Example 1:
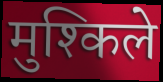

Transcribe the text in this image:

मुश्किले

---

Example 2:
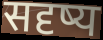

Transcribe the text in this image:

सदृष्य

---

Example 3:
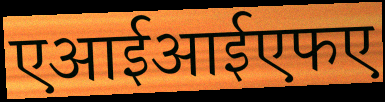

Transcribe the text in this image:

एआईआईएफए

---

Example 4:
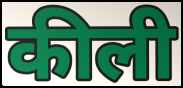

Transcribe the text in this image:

कीली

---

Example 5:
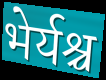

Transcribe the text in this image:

भेर्यश्च